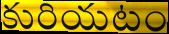
కురియటం